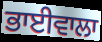
ਭਾਈਵਾਲਾ